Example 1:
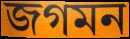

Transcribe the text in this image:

জগমন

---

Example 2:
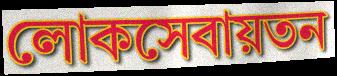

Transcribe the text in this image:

লোকসেবায়তন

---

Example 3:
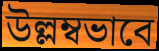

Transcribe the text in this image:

উল্লম্বভাবে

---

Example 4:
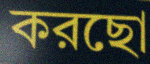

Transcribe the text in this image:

করছো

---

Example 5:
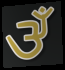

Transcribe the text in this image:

ঔঁ